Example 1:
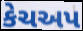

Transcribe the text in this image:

કેચઅપ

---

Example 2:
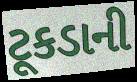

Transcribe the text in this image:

ટૂકડાની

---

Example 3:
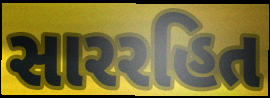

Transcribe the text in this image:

સારરહિત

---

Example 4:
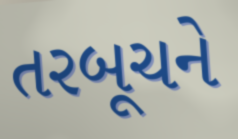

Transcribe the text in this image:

તરબૂચને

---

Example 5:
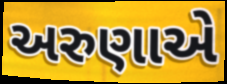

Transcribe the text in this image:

અરુણાએ